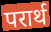
परार्थ